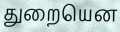
துறையென